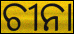
ଚୀନା